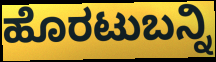
ಹೊರಟುಬನ್ನಿ